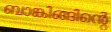
ബാങ്കിങ്ങിന്റെ